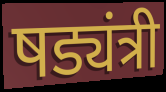
षड्यंत्री